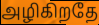
அழிகிறதே